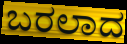
ಬರಲಾದ